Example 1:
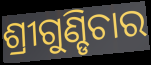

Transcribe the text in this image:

ଶ୍ରୀଗୁଣ୍ଡିଚାର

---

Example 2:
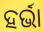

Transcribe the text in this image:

ହର୍ଭା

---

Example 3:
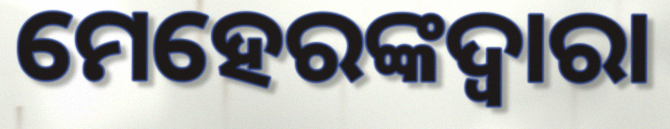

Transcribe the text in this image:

ମେହେରଙ୍କଦ୍ଵାରା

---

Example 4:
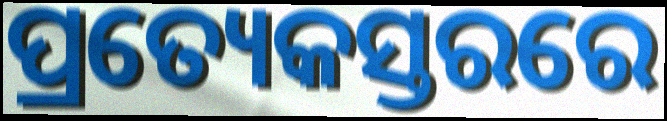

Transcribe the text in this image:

ପ୍ରତ୍ୟେକସ୍ତରରେ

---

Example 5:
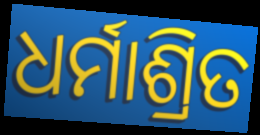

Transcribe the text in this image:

ଧର୍ମାଶ୍ରିତ